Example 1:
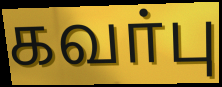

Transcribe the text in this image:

கவர்பு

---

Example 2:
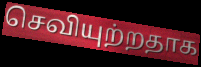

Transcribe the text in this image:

செவியுற்றதாக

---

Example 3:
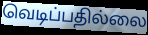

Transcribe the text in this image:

வெடிப்பதில்லை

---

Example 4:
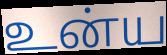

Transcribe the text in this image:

உன்ய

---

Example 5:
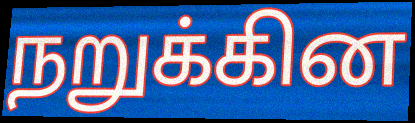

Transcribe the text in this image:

நறுக்கின